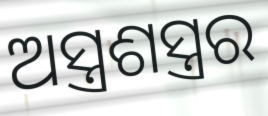
ଅସ୍ତ୍ରଶସ୍ତ୍ରର